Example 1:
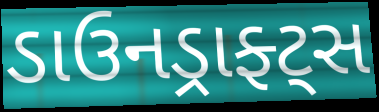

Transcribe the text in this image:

ડાઉનડ્રાફ્ટ્સ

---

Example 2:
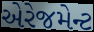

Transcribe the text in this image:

એરેજમેન્ટ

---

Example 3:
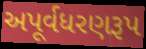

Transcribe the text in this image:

અપૂર્વધરણરૂપ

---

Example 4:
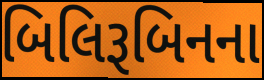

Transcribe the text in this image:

બિલિરૂબિનના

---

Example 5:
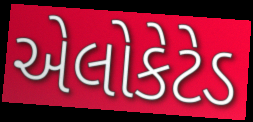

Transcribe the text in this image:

એલોકેટેડ